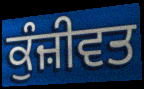
ਕੁੰਜ਼ੀਵਤ